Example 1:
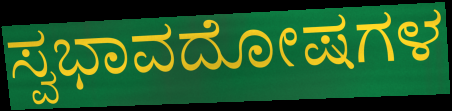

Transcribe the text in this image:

ಸ್ವಭಾವದೋಷಗಳ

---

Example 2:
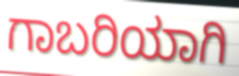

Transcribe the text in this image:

ಗಾಬರಿಯಾಗಿ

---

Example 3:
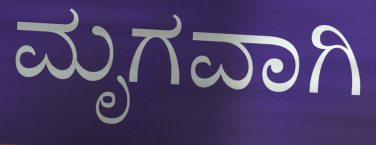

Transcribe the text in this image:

ಮೃಗವಾಗಿ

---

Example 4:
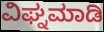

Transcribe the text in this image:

ವಿಘ್ನಮಾಡಿ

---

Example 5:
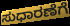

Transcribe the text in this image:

ಸುಧಾರಣೆಗೆ